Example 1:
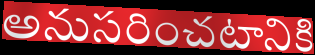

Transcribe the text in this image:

అనుసరించటానికి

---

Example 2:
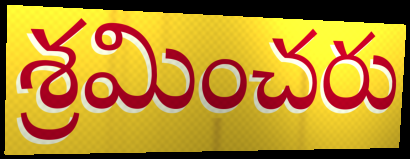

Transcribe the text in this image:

శ్రమించరు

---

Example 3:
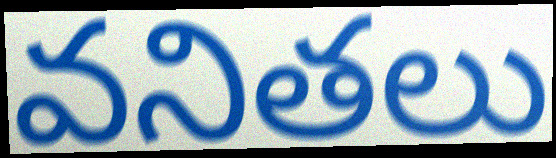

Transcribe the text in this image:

వనితలు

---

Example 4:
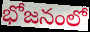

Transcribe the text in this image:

భోజనంలో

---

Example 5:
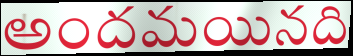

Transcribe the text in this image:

అందమయినది